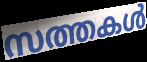
സത്തകൾ